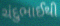
ચંદુભાઈથી